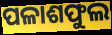
ପଳାଶଫୁଲ